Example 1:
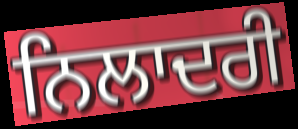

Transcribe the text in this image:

ਨਿਲਾਦਰੀ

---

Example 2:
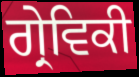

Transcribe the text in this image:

ਗ੍ਰੇਵਿਕੀ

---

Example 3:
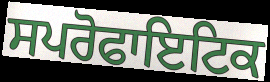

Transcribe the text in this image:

ਸਪਰੋਫਾਇਟਿਕ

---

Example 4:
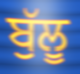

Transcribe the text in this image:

ਬੁੱਲੂ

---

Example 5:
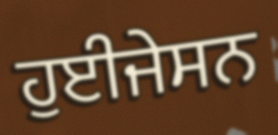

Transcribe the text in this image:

ਹੁਈਜੇਸਨ